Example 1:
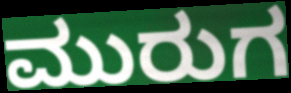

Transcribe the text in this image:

ಮುರುಗ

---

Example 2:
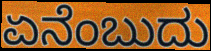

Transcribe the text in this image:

ಏನೆಂಬುದು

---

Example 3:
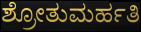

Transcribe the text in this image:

ಶ್ರೋತುಮರ್ಹತಿ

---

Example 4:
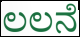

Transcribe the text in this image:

ಲಲನೆ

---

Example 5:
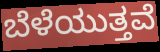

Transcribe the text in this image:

ಬೆಳೆಯುತ್ತವೆ